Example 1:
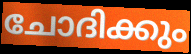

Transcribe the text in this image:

ചോദിക്കും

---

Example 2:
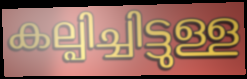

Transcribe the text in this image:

കല്പിച്ചിട്ടുള്ള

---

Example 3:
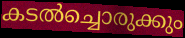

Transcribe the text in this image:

കടൽച്ചൊരുക്കും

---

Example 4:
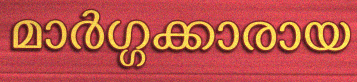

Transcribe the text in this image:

മാർഗ്ഗക്കാരായ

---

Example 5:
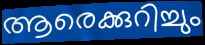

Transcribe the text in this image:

ആരെക്കുറിച്ചും